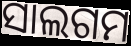
ସାଲଗମ